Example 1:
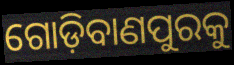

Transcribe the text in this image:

ଗୋଡ଼ିବାଣପୁରକୁ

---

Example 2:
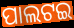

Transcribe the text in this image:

ପାଲଟଇ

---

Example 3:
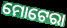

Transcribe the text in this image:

ମୋଟେରା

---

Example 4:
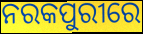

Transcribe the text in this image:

ନରକପୁରୀରେ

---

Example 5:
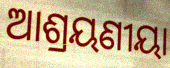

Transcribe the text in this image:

ଆଶ୍ରୟଣୀୟା